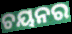
ଚୟନର